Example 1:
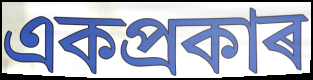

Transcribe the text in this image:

একপ্ৰকাৰ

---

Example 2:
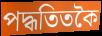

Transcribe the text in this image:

পদ্ধতিতকৈ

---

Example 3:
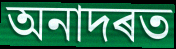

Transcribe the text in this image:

অনাদৰত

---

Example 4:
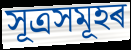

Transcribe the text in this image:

সূত্ৰসমূহৰ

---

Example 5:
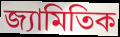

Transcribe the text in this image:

জ্যামিতিক